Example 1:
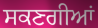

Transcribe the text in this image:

ਸਕਣਗੀਆਂ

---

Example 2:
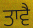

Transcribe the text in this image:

ਤਾਵੈ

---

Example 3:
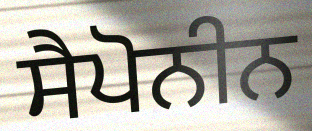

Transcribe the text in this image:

ਸੈਪੋਨੀਨ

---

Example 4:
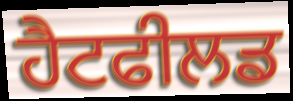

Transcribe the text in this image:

ਹੈਟਫੀਲਡ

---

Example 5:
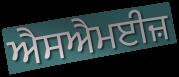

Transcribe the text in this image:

ਐਸਐਮਈਜ਼